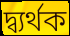
দ্ব্যর্থক